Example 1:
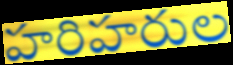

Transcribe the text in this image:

హరిహరుల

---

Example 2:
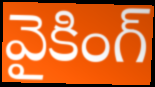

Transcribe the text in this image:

వైకింగ్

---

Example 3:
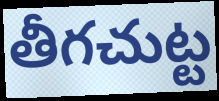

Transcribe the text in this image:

తీగచుట్ట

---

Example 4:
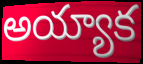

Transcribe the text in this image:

అయ్యాక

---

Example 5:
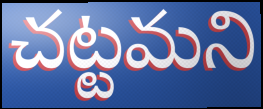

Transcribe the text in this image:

చట్టమని